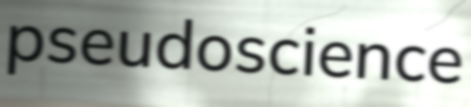
pseudoscience